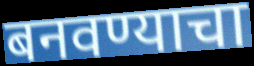
बनवण्याचा